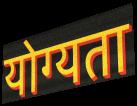
योग्यता